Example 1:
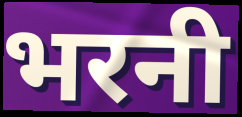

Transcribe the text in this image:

भरनी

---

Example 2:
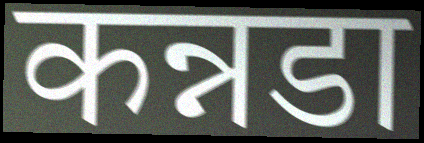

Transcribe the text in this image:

कन्नडा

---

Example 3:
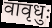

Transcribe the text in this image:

वावृधुः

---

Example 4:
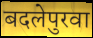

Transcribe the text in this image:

बदलेपुरवा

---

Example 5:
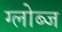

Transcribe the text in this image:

ग्लोब्ज